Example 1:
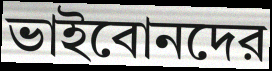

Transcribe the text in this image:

ভাইবোনদের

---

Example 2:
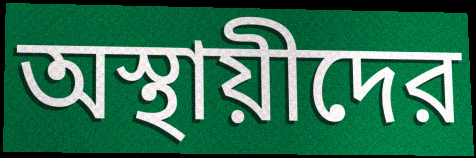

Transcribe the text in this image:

অস্থায়ীদের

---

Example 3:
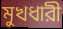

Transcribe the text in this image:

মুখধারী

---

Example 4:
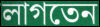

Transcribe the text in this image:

লাগতেন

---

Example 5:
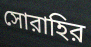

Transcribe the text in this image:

সোরাহির